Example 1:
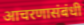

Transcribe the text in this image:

आचरणासंबंधी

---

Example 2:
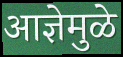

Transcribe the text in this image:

आज्ञेमुळे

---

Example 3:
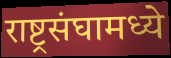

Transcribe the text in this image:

राष्ट्रसंघामध्ये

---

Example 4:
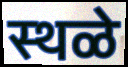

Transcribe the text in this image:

स्थळे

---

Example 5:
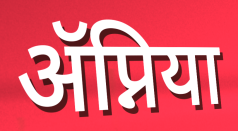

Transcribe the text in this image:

ॲप्निया